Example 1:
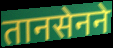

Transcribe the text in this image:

तानसेनने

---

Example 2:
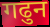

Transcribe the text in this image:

गढुन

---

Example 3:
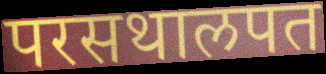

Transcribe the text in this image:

परसथालपत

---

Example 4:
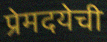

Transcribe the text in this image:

प्रेमदयेची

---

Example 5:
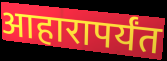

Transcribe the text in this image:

आहारापर्यंत